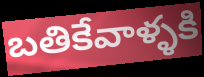
బతికేవాళ్ళకి